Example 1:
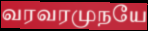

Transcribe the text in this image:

வரவரமுநயே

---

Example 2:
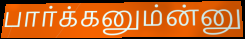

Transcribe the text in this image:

பார்க்கனும்ன்னு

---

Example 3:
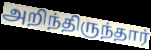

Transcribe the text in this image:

அறிந்திருந்தார்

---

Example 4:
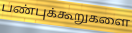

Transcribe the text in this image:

பண்புக்கூறுகளை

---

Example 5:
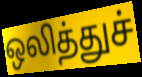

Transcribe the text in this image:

ஒலித்துச்